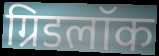
ग्रिडलॉक